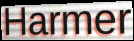
Harmer